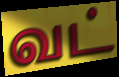
வட்